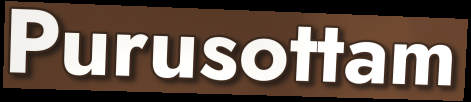
Purusottam